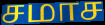
சமாச